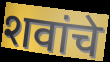
शवांचे